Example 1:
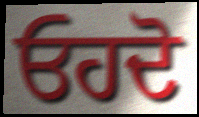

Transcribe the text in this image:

ਓਹਦੋ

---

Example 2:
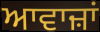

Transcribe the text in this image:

ਆਵਾਜ਼ਾਂ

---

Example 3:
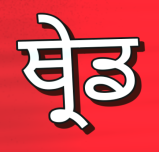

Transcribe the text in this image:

ਥ੍ਰੇਡ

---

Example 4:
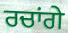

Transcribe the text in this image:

ਰਚਾਂਗੇ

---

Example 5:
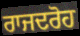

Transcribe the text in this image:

ਰਾਜਦਰੋਹ